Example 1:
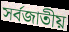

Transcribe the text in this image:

সর্বজাতীয়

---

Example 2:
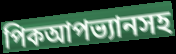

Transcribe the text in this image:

পিকআপভ্যানসহ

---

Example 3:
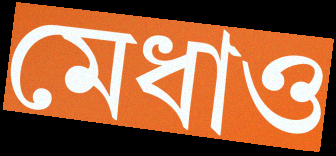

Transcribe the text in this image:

মেধাও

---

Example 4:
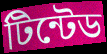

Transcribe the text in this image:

টিন্টেড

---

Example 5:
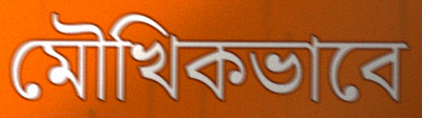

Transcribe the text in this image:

মৌখিকভাবে